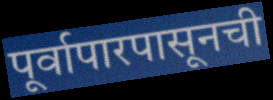
पूर्वापारपासूनची